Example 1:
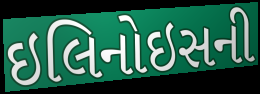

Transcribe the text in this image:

ઇલિનોઇસની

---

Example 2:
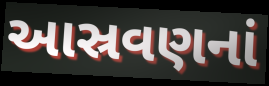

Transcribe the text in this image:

આસ્રવણનાં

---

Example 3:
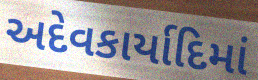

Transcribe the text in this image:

અદેવકાર્યાદિમાં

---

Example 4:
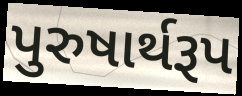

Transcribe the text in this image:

પુરુષાર્થરૂપ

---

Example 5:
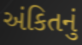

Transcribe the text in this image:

અંકિતનું